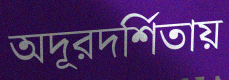
অদূরদর্শিতায়